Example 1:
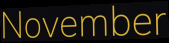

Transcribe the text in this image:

November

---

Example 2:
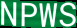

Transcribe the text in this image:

NPWS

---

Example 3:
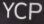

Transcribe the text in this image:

YCP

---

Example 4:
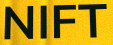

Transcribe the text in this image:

NIFT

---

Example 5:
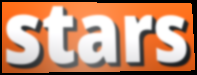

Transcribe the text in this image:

stars